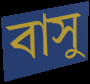
বাসু